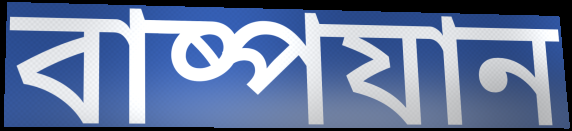
বাষ্পযান